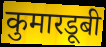
कुमारडूबी